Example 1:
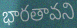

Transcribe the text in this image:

భారతావని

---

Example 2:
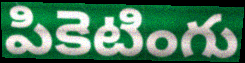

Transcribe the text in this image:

పికెటింగు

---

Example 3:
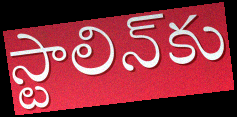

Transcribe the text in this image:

స్టాలిన్‌కు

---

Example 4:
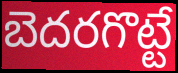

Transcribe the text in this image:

బెదరగొట్టే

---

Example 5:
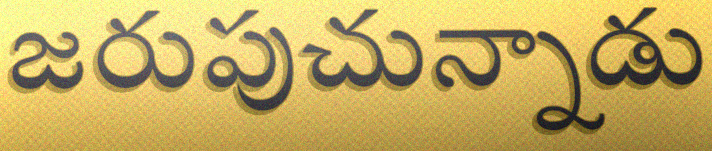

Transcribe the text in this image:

జరుపుచున్నాడు